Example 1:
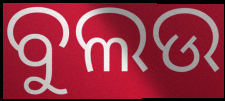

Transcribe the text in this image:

ବୁଲଉ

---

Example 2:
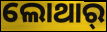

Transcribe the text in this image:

ଲୋଥାର୍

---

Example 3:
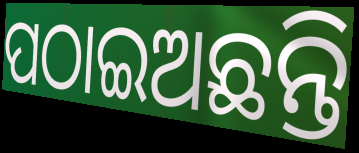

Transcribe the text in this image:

ପଠାଇଅଛନ୍ତି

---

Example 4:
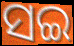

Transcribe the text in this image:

ସଇ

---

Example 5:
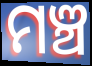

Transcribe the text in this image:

ମଞ୍ଚ